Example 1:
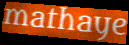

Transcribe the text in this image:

mathaye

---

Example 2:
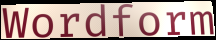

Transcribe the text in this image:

Wordform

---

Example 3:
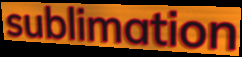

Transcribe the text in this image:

sublimation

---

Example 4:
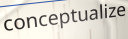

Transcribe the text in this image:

conceptualize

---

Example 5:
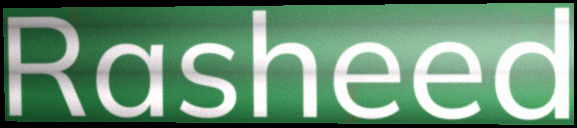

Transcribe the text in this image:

Rasheed